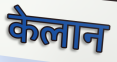
केलान